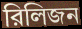
রিলিজন